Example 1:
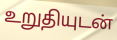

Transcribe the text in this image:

உறுதியுடன்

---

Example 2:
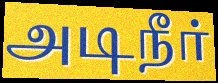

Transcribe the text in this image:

அடிநீர்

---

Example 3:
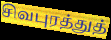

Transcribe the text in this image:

சிவபுரத்துத்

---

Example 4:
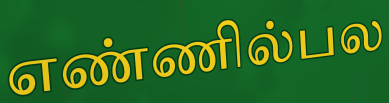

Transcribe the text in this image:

எண்ணில்பல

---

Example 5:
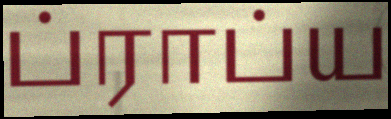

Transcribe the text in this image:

ப்ராப்ய